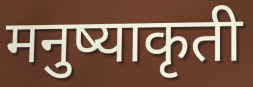
मनुष्याकृती